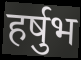
हर्षुभ